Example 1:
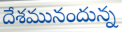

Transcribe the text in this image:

దేశమునందున్న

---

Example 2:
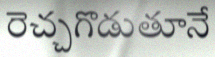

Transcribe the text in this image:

రెచ్చగొడుతూనే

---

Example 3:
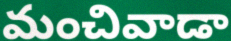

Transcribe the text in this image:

మంచివాడా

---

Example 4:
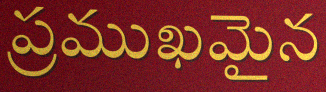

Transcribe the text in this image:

ప్రముఖమైన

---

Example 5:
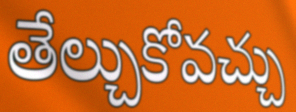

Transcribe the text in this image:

తేల్చుకోవచ్చు